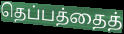
தெப்பத்தைத்